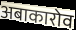
अबाकारोव